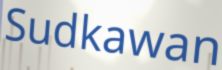
Sudkawan